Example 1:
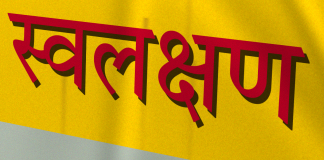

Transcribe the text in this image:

स्वलक्षण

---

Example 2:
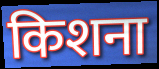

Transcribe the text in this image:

किशना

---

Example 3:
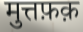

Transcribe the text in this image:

मुत्तफ़क़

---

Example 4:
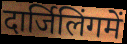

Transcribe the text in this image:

दार्जिलिंगमें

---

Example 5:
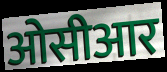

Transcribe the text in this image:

ओसीआर